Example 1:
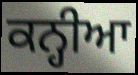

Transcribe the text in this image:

ਕਨ੍ਹੀਆ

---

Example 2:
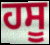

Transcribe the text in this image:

ਹਸੂ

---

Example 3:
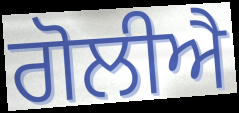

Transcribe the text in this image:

ਗੋਲੀਐ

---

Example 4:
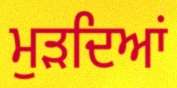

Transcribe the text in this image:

ਮੁੜਦਿਆਂ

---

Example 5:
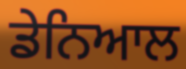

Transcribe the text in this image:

ਡੇਨਿਆਲ